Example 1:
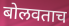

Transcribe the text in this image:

बोलवताच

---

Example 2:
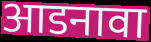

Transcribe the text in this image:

आडनावा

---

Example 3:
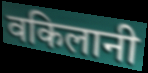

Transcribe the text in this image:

वकिलानी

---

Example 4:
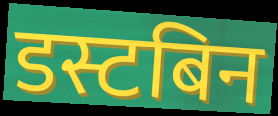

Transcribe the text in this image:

डस्टबिन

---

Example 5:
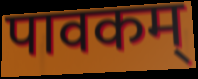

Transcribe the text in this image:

पावकम्